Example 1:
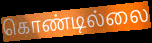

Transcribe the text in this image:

கொண்டில்லை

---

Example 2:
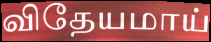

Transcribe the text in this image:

விதேயமாய்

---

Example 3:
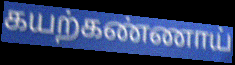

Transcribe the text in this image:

கயற்கண்ணாய்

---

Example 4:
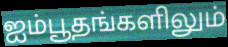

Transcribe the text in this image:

ஐம்பூதங்களிலும்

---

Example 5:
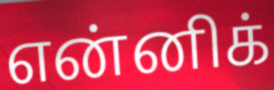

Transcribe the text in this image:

என்னிக்